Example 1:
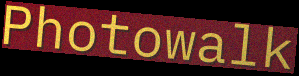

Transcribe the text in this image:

Photowalk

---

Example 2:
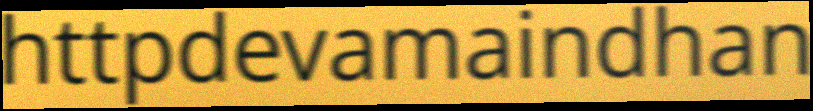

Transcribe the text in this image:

httpdevamaindhan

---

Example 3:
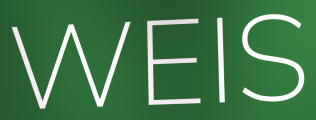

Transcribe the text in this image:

WEIS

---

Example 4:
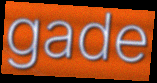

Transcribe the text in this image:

gade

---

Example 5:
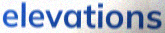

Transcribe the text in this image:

elevations